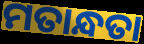
ମତାନ୍ଧତା